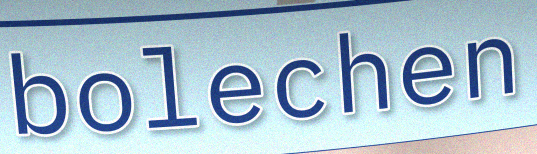
bolechen